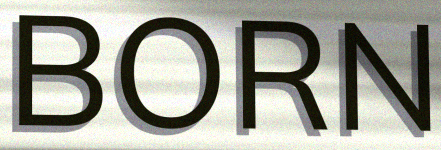
BORN